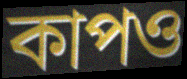
কাপও